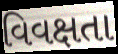
વિવક્ષતા